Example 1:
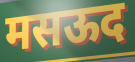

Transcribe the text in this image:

मसऊद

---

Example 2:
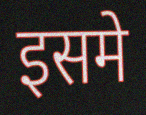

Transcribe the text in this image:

इसमे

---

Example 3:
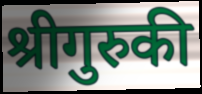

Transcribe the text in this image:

श्रीगुरुकी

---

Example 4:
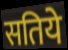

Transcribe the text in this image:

सतिये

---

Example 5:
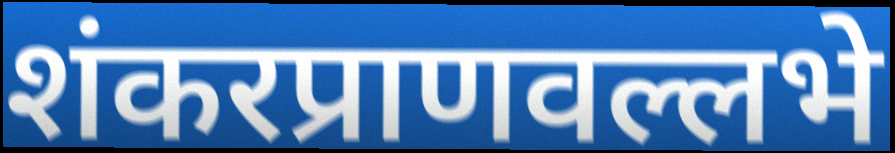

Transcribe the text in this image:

शंकरप्राणवल्लभे